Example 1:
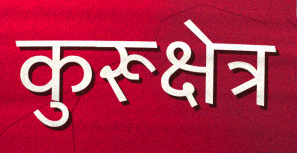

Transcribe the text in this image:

कुरूक्षेत्र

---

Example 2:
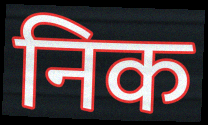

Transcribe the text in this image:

निक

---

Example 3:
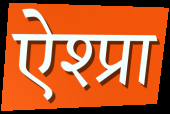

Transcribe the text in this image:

ऐश्प्रा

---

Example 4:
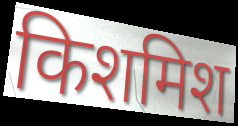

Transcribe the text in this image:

किशमिश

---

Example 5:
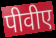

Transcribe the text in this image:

पीवीए